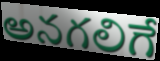
అనగలిగే